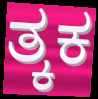
ತ್ಕಕ